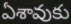
ఏశావుకు